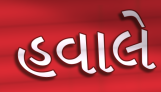
હવાલે